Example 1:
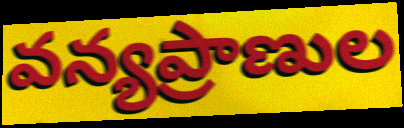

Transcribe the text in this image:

వన్యప్రాణుల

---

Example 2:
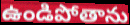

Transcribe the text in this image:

ఉండిపోతాను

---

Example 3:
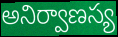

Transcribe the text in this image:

అనిర్వాణస్య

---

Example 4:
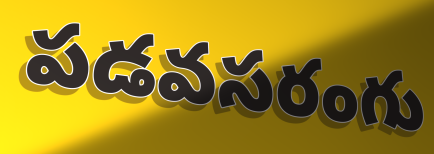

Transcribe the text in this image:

పడవసరంగు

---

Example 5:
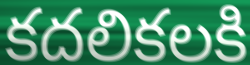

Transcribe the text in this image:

కదలికలకి